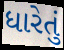
ધારેતું